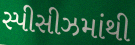
સ્પીસીઝમાંથી